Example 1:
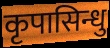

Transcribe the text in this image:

कृपासिन्धु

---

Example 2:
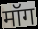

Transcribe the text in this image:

मॉग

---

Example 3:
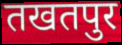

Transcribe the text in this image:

तखतपुर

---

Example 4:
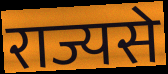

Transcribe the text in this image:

राज्यसे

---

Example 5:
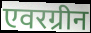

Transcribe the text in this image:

एवरग्रीन